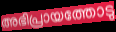
അഭിപ്രായത്തോടു